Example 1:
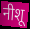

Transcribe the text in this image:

नीशू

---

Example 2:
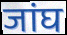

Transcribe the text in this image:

जांघ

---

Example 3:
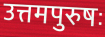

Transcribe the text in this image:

उत्तमपुरुषः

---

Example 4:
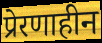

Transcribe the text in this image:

प्रेरणाहीन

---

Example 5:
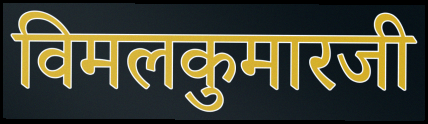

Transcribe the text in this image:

विमलकुमारजी